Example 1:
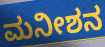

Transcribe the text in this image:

ಮನೀಶನ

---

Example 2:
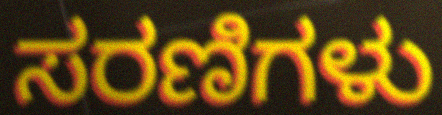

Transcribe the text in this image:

ಸರಣಿಗಳು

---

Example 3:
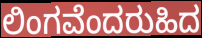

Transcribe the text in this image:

ಲಿಂಗವೆಂದರುಹಿದ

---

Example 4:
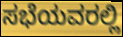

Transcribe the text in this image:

ಸಭೆಯವರಲ್ಲಿ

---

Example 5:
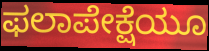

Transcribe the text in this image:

ಫಲಾಪೇಕ್ಷೆಯೂ